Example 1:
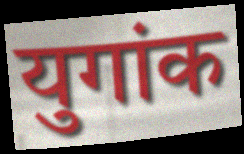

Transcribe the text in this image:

युगांक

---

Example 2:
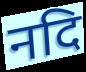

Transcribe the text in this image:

नदि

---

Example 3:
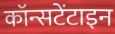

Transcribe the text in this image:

कॉन्सटेंटाइन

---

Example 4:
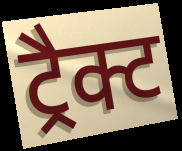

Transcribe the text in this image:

ट्रैक्ट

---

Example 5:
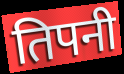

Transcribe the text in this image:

तिपनी